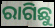
ରାଗିଛୁ